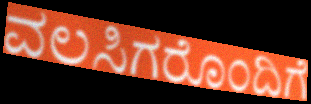
ವಲಸಿಗರೊಂದಿಗೆ